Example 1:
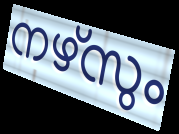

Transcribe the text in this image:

നഴ്സും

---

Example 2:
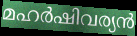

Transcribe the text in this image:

മഹർഷിവര്യൻ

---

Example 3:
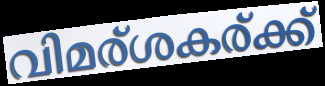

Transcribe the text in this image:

വിമര്ശകര്ക്ക്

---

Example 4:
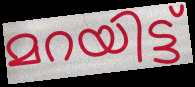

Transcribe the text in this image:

മറയിട്ട്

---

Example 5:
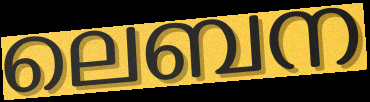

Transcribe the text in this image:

ലെബന